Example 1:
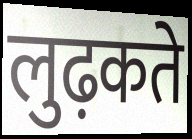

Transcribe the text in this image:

लुढ़कते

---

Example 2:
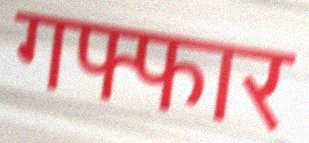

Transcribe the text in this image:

गफ्फार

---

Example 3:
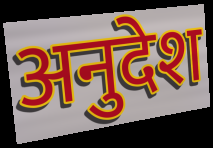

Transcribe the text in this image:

अनुदेश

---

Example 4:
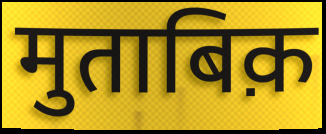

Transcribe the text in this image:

मुताबिक़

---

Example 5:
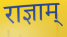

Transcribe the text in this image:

राज्ञाम्